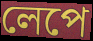
লেপে